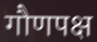
गौणपक्ष